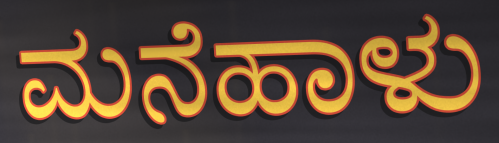
ಮನೆಹಾಳು